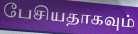
பேசியதாகவும்